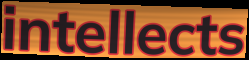
intellects